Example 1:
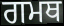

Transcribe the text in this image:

ਗਮਥ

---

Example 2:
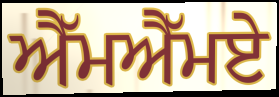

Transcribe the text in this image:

ਐੱਮਐੱਮਏ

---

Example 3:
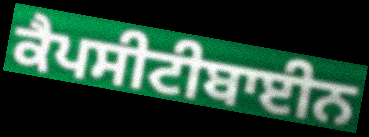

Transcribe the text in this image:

ਕੈਪਸੀਟੀਬਾਈਨ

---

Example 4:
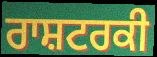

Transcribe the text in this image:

ਰਾਸ਼ਟਰਕੀ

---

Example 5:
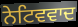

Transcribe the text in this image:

ਨੇਟਿਵਵਾਦ